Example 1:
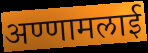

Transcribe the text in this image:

अण्णामलाई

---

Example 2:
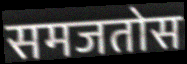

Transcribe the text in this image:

समजतोस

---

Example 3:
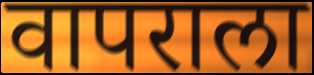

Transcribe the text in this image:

वापराला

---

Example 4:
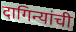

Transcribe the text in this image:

दागिन्यांची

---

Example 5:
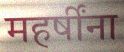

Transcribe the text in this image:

महर्षींना